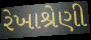
રેખાશ્રેણી